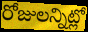
రోజులన్నిట్లో